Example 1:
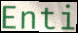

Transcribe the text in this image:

Enti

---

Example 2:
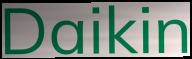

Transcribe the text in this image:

Daikin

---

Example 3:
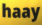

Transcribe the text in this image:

haay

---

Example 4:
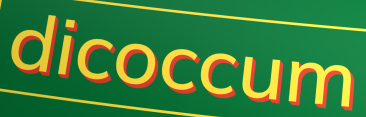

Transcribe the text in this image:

dicoccum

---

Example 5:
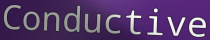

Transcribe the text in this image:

Conductive